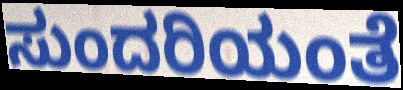
ಸುಂದರಿಯಂತೆ